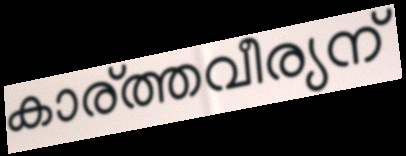
കാര്ത്തവീര്യന്